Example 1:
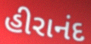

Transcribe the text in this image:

હીરાનંદ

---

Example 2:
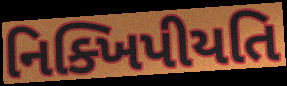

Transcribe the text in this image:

નિક્ખિપીયતિ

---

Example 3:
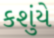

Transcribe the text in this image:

કશુંયે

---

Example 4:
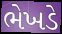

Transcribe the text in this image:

ભેખડે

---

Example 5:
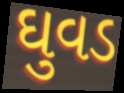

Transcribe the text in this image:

ઘુવડ